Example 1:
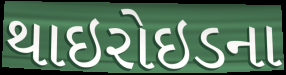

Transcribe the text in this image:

થાઇરોઇડના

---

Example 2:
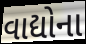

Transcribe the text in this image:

વાદ્યોના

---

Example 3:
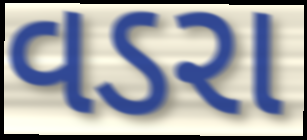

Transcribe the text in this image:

વડરા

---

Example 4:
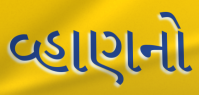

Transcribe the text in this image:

વ્હાણનો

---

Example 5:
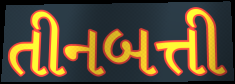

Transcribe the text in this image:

તીનબત્તી